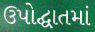
ઉપોદ્ઘાતમાં